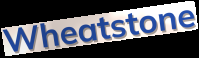
Wheatstone